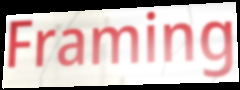
Framing